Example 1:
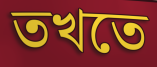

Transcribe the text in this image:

তখতে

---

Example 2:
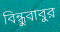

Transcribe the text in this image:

বিন্ধুবাবুর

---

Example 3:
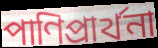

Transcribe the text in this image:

পাণিপ্রার্থনা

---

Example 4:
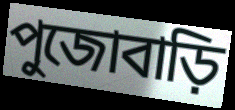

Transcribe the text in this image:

পুজোবাড়ি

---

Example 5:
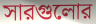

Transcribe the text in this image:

সারগুলোর